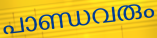
പാണ്ഡവരും